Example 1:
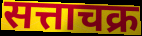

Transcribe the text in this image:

सत्ताचक्र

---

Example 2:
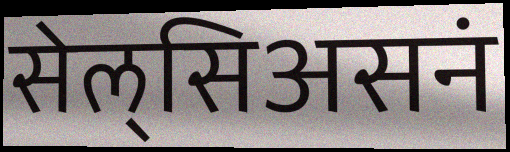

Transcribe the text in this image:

सेल्सिअसनं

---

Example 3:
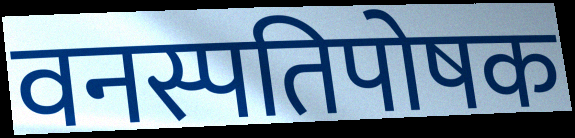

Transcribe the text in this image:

वनस्पतिपोषक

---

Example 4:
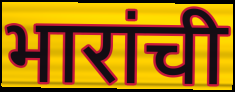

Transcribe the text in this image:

भारांची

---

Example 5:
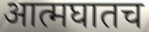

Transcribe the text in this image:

आत्मघातच